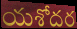
యశోదర